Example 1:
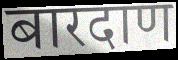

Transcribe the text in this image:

बारदाण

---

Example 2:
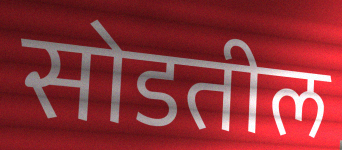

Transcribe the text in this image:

सोडतील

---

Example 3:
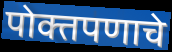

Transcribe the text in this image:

पोक्तपणाचे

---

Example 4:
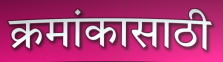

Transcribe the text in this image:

क्रमांकासाठी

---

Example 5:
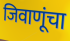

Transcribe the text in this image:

जिवाणूंचा